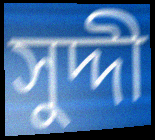
সুদ্দী